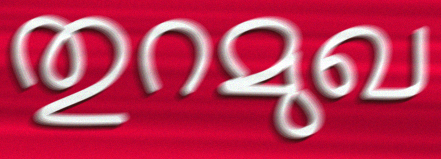
തുറമുഖ